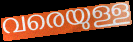
വരെയുള്ള